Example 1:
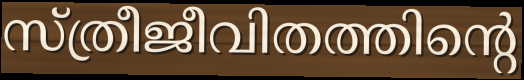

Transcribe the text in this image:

സ്ത്രീജീവിതത്തിന്റെ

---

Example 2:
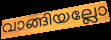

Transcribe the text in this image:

വാങ്ങിയല്ലോ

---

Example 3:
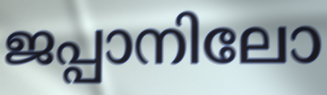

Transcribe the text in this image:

ജപ്പാനിലോ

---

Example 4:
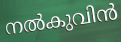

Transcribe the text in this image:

നൽകുവിൻ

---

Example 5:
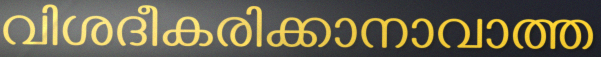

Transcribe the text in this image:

വിശദീകരിക്കാനാവാത്ത